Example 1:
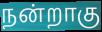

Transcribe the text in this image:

நன்றாகு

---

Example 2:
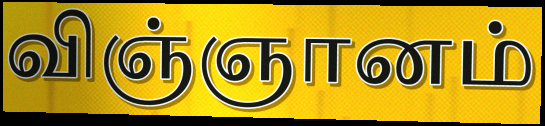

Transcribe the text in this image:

விஞ்ஞானம்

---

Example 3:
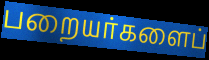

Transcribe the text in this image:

பறையர்களைப்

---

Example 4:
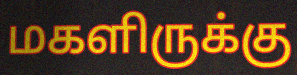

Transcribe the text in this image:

மகளிருக்கு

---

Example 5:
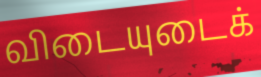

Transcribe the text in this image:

விடையுடைக்